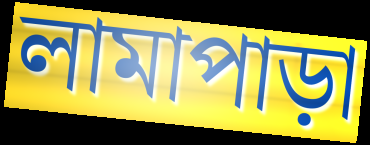
লামাপাড়া